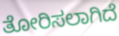
ತೋರಿಸಲಾಗಿದೆ